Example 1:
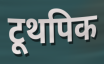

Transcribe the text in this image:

टूथपिक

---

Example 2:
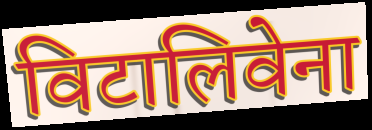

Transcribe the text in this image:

विटालिवेना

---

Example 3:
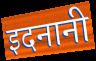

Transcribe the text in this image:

इदनानी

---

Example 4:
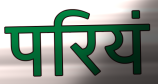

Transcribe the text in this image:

परियं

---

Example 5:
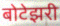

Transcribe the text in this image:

बोटेझरी